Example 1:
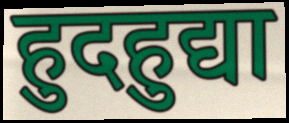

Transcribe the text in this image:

हुदहुद्या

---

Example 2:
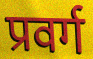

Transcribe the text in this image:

प्रवर्ग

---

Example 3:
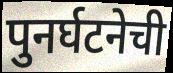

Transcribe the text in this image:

पुनर्घटनेची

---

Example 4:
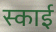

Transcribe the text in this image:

स्काई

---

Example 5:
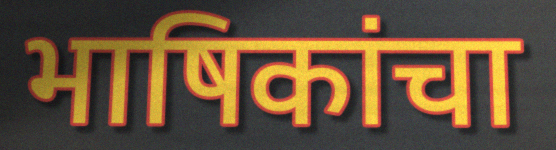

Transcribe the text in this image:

भाषिकांचा